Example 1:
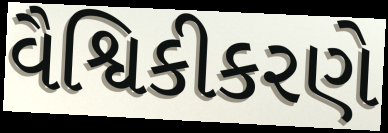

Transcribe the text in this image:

વૈશ્વિકીકરણે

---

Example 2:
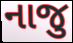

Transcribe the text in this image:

નાજુ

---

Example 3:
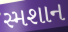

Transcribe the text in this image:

સ્મશાન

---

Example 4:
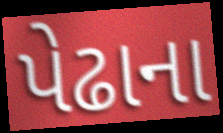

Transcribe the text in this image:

પેઢાના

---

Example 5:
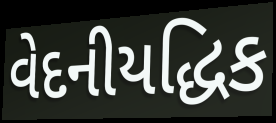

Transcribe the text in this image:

વેદનીયદ્ધિક